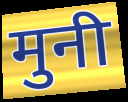
मुनी